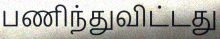
பணிந்துவிட்டது